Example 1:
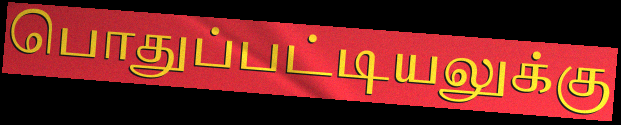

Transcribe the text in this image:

பொதுப்பட்டியலுக்கு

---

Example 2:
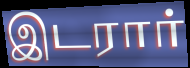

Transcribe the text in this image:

இடரார்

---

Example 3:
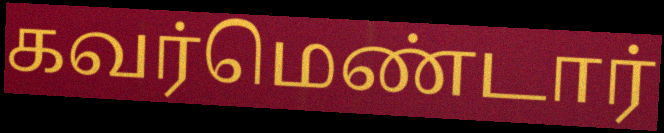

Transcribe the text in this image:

கவர்மெண்டார்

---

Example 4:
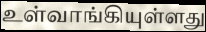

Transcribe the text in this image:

உள்வாங்கியுள்ளது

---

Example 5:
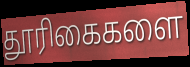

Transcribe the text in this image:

தூரிகைகளை